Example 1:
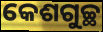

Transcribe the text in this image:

କେଶଗୁଚ୍ଛ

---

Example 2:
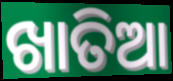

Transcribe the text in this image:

ଖାତିଆ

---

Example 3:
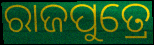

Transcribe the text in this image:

ରାଜପୁତ୍ରେ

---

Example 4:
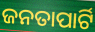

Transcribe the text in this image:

ଜନତାପାର୍ଟି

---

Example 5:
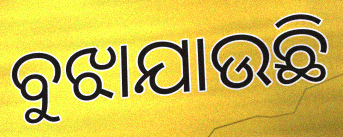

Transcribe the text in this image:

ବୁଝାଯାଉଛି